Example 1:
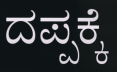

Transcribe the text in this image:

ದಪ್ಪಕ್ಕೆ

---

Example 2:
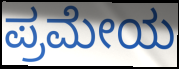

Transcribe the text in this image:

ಪ್ರಮೇಯ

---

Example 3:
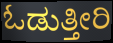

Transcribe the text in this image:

ಓಡುತ್ತೀರಿ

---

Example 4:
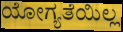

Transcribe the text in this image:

ಯೋಗ್ಯತೆಯಿಲ್ಲ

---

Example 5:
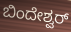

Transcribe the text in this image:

ಬಿಂದೇಶ್ವರ್